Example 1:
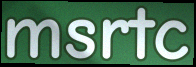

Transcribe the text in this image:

msrtc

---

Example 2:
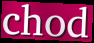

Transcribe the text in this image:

chod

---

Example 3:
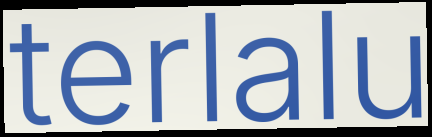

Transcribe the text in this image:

terlalu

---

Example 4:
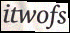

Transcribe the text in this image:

itwofs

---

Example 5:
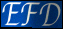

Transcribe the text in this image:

EFD